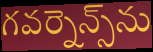
గవర్నెన్స్‌ను